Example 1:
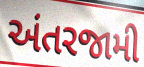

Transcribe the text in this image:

અંતરજામી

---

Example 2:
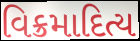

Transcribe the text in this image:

વિક્રમાદિત્ય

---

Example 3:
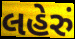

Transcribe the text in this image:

લહેરું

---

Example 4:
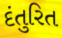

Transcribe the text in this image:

દંતુરિત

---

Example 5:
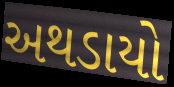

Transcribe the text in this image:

અથડાયો